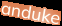
anduke